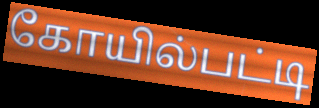
கோயில்பட்டி